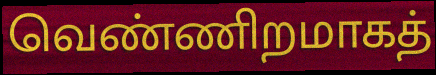
வெண்ணிறமாகத்